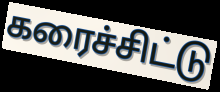
கரைச்சிட்டு